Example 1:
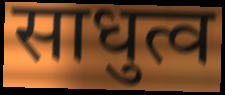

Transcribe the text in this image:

साधुत्व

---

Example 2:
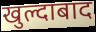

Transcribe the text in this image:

खुल्दाबाद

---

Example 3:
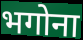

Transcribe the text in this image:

भगोना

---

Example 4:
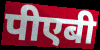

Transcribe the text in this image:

पीएबी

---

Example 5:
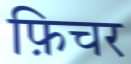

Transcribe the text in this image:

फ़िचर